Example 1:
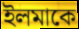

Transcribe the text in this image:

ইলমাকে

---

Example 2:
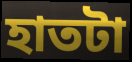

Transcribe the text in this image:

হাতটা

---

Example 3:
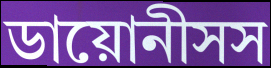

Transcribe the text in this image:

ডায়োনীসস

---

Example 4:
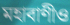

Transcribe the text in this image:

মহাবাণীও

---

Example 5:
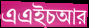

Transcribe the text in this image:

এএইচআর